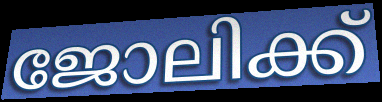
ജോലിക്ക്